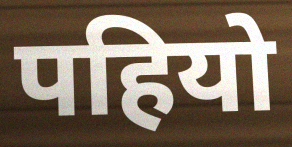
पहियो